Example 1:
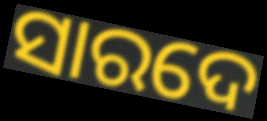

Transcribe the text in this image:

ସାରଦେ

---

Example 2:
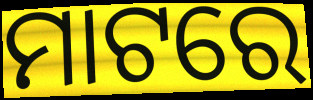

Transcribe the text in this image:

ମାଟରେ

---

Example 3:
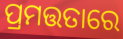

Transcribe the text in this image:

ପ୍ରମତ୍ତତାରେ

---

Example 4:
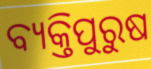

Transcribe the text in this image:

ବ୍ୟକ୍ତିପୁରୁଷ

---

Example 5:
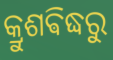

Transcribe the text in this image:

କ୍ରୁଶଵିଦ୍ଧରୁ